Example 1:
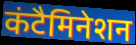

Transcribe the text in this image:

कंटैमिनेशन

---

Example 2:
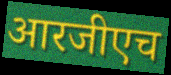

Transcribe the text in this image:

आरजीएच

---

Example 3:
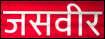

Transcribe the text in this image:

जसवीर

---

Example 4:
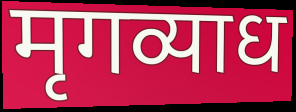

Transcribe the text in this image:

मृगव्याध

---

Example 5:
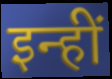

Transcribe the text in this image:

इन्हीं